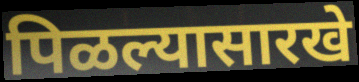
पिळल्यासारखे